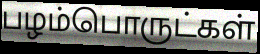
பழம்பொருட்கள்